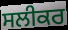
ਸਲੀਕਰ